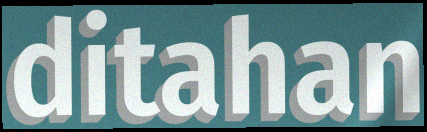
ditahan